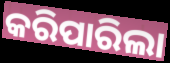
କରିପାରିଲା